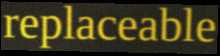
replaceable